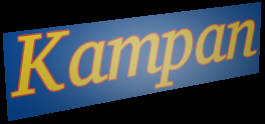
Kampan